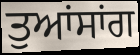
ਤੁਆਂਸਾਂਗ